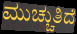
ಮುಚ್ಚುತಿದೆ